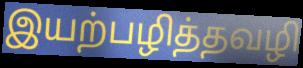
இயற்பழித்தவழி